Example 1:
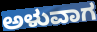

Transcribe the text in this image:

ಅಳುವಾಗ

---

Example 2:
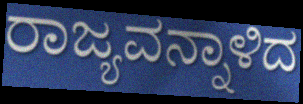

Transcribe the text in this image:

ರಾಜ್ಯವನ್ನಾಳಿದ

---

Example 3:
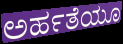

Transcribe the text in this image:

ಅರ್ಹತೆಯೂ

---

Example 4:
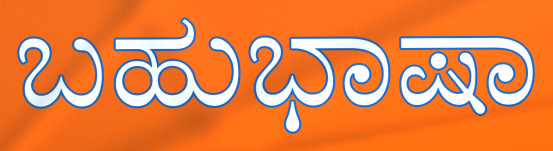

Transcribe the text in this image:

ಬಹುಭಾಷಾ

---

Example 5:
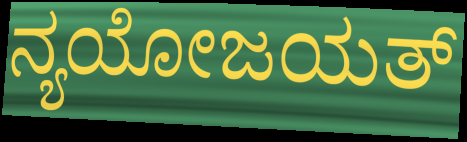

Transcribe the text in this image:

ನ್ಯಯೋಜಯತ್